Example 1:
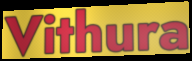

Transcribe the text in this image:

Vithura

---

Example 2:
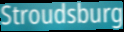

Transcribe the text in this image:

Stroudsburg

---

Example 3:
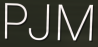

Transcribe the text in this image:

PJM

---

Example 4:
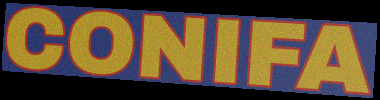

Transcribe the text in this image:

CONIFA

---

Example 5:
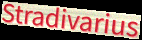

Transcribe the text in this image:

Stradivarius